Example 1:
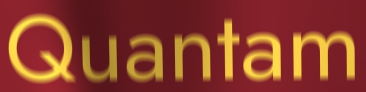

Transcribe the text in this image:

Quantam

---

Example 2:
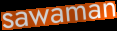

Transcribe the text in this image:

sawaman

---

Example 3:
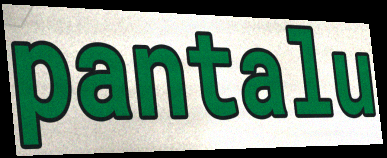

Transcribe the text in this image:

pantalu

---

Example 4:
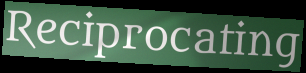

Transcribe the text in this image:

Reciprocating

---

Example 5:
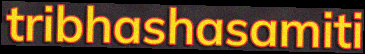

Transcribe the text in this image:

tribhashasamiti